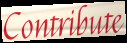
Contribute